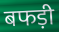
बफड़ी